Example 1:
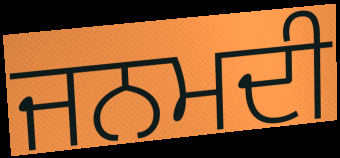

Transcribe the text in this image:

ਜਨਮਦੀ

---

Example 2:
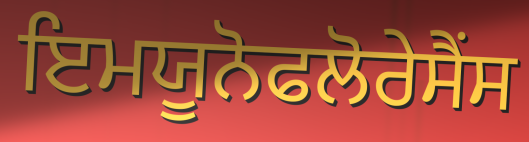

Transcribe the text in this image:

ਇਮਯੂਨੋਫਲੋਰੇਸੈਂਸ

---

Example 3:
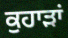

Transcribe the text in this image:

ਕੁਹਾੜਾਂ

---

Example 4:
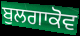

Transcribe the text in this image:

ਬੁਲਗਾਕੋਵ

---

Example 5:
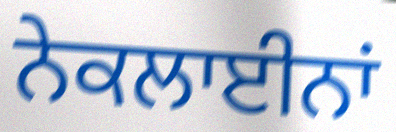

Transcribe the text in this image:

ਨੇਕਲਾਈਨਾਂ